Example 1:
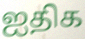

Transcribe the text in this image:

ஐதிக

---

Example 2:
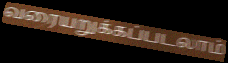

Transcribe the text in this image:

வரையறுக்கப்படலாம்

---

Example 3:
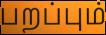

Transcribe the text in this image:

பறப்பும்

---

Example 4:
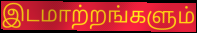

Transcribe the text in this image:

இடமாற்றங்களும்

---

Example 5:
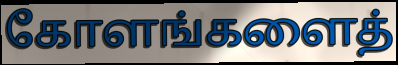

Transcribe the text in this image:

கோளங்களைத்